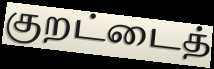
குறட்டைத்